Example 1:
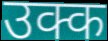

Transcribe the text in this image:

उक्क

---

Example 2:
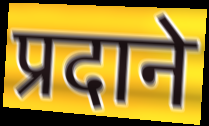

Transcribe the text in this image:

प्रदाने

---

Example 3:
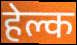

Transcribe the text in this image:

हेल्क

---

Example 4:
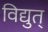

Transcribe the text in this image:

विद्युत्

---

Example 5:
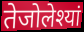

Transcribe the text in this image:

तेजोलेश्यां